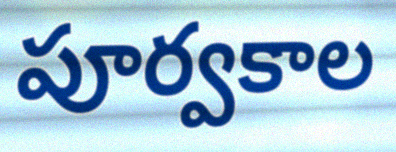
పూర్వకాల